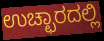
ಉಚ್ಛಾರದಲ್ಲಿ